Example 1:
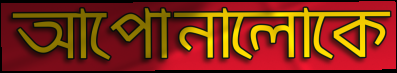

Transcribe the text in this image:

আপোনালোকে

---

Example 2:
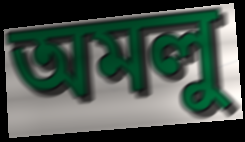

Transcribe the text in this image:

অমলু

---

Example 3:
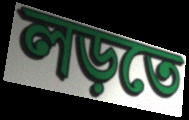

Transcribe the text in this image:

লড়তে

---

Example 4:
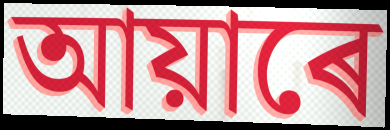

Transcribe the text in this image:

আয়াৰে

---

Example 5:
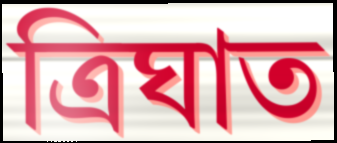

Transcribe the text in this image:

ত্ৰিঘাত